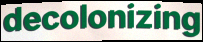
decolonizing